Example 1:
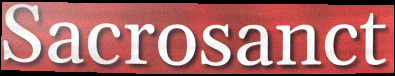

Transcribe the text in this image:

Sacrosanct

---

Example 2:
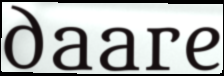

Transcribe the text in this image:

daare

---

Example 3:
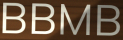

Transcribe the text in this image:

BBMB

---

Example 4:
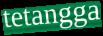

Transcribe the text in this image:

tetangga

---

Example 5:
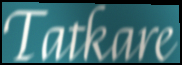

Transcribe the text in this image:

Tatkare